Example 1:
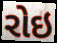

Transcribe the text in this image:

રોઇ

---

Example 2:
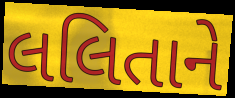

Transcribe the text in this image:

લલિતાને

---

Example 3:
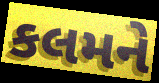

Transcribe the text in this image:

કલમને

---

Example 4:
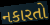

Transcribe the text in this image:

નકારતો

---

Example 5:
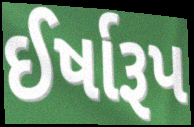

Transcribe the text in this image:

ઈર્ષારૂપ